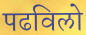
पढविलो